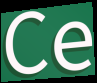
Ce